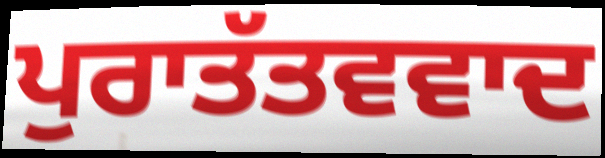
ਪੁਰਾਤੱਤਵਵਾਦ